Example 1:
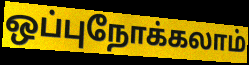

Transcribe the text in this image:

ஒப்புநோக்கலாம்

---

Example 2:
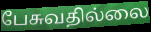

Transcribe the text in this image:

பேசுவதில்லை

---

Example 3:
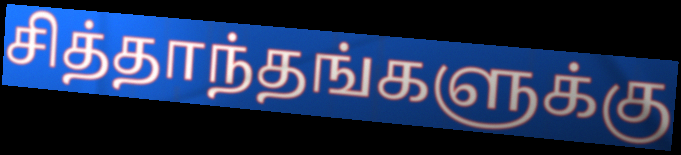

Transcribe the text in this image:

சித்தாந்தங்களுக்கு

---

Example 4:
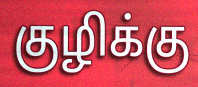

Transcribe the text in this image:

குழிக்கு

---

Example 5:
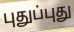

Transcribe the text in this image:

புதுப்புது